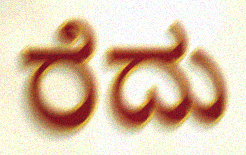
ರೆದು